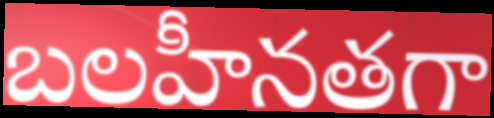
బలహీనతగా